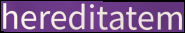
hereditatem